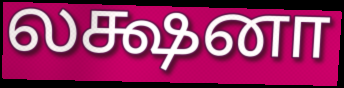
லக்ஷனா